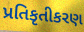
પ્રતિકૃતીકરણ